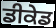
ਡੀਕੇਡ